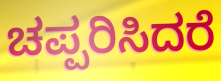
ಚಪ್ಪರಿಸಿದರೆ